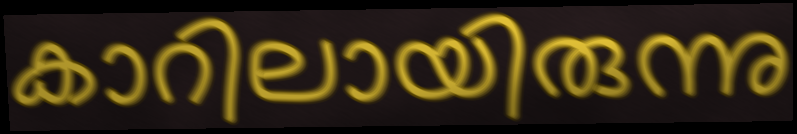
കാറിലായിരുന്നു